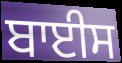
ਬਾਈਸ